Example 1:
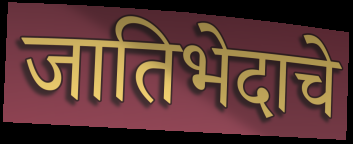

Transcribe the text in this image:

जातिभेदाचे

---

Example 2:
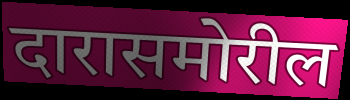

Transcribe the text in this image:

दारासमोरील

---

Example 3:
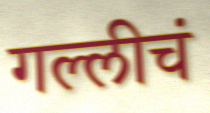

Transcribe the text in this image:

गल्लीचं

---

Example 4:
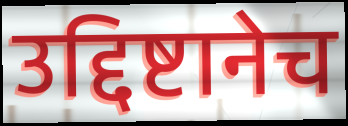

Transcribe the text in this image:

उद्दिष्टानेच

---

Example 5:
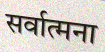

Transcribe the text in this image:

सर्वात्मना